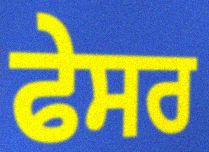
ਫੇਸਰ